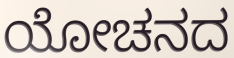
ಯೋಚನದ